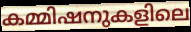
കമ്മിഷനുകളിലെ